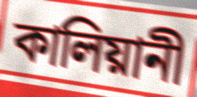
কালিয়ানী